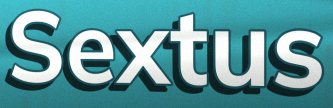
Sextus